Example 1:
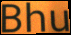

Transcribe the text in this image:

Bhu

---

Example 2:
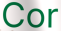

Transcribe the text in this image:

Cor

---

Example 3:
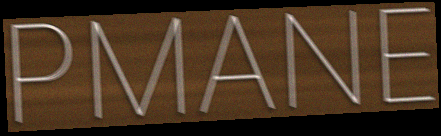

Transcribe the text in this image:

PMANE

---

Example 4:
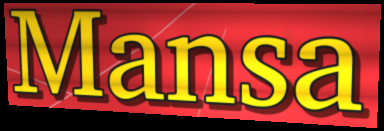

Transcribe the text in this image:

Mansa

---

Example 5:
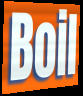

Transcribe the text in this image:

Boil